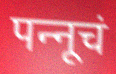
पन्नूचं